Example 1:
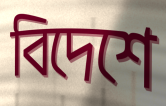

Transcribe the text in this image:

বিদেশে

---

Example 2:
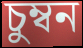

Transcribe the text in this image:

চুম্বন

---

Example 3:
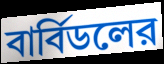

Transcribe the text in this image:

বার্বিডলের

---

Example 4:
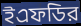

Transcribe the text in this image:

ইএফডির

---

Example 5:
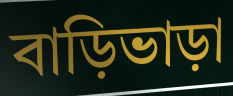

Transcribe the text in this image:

বাড়িভাড়া